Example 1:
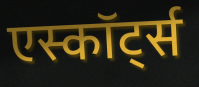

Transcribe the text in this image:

एस्कॉर्ट्स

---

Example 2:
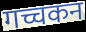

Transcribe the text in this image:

गच्चकन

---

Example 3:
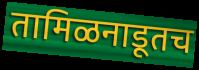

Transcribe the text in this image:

तामिळनाडूतच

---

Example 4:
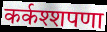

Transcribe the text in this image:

कर्कश्शपणा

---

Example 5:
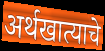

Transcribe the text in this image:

अर्थखात्याचे